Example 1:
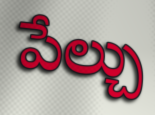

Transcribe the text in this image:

పేల్చు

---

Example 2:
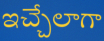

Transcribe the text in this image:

ఇచ్చేలాగా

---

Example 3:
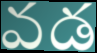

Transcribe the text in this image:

వడ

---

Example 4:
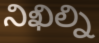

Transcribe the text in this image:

నిఖిల్ని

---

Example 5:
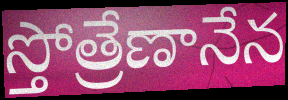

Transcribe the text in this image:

స్తోత్రేణానేన